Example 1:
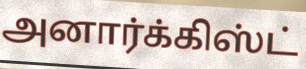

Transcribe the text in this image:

அனார்க்கிஸ்ட்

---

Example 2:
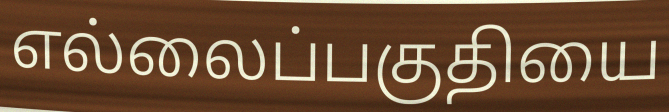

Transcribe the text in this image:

எல்லைப்பகுதியை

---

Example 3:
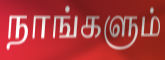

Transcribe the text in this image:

நாங்களும்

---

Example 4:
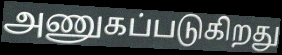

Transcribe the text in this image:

அணுகப்படுகிறது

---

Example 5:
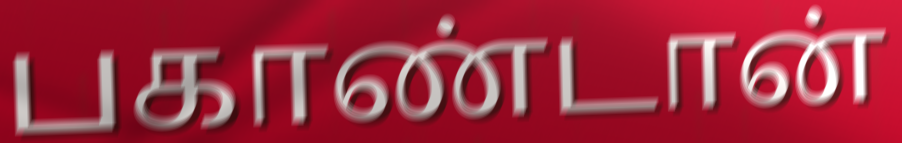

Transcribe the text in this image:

பகாண்டான்